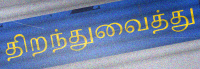
திறந்துவைத்து